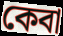
কেবা